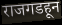
राजगडहून